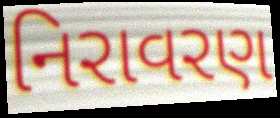
નિરાવરણ